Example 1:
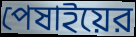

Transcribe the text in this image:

পেষাইয়ের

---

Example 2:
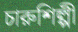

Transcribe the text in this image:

চারুশিল্পী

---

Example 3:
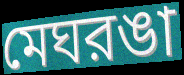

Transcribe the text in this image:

মেঘরঙা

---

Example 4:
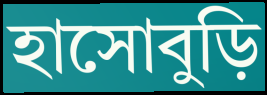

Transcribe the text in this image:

হাসোবুড়ি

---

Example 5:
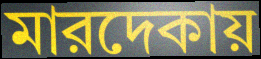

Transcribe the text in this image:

মারদেকায়